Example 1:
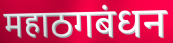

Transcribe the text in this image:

महाठगबंधन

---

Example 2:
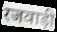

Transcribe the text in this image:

रजवाड़ी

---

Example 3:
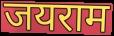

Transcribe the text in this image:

जयराम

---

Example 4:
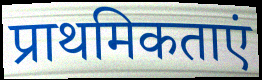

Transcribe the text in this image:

प्राथमिकताएं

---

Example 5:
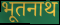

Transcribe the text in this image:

भूतनाथ